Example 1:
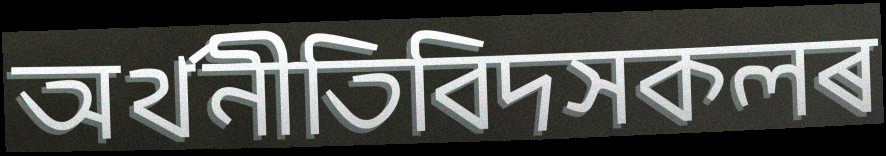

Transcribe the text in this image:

অৰ্থনীতিবিদসকলৰ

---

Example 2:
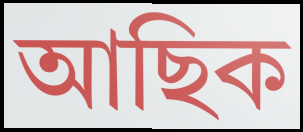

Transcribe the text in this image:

আছিক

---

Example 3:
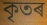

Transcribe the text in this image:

কৃতৰ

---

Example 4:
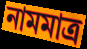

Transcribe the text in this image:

নামমাত্ৰ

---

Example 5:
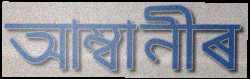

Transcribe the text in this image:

আম্বানীৰ